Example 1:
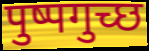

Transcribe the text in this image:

पुष्पगुच्छ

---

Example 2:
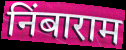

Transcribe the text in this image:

निंबाराम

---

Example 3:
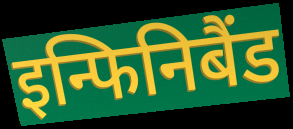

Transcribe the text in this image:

इन्फिनिबैंड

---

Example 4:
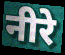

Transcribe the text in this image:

नीरे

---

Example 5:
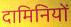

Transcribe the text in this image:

दामिनियों